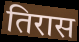
तिरास